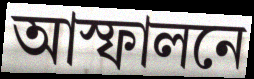
আস্ফালনে